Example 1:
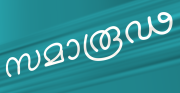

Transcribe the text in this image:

സമാരൂഢ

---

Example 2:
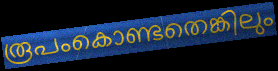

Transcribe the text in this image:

രൂപംകൊണ്ടതെങ്കിലും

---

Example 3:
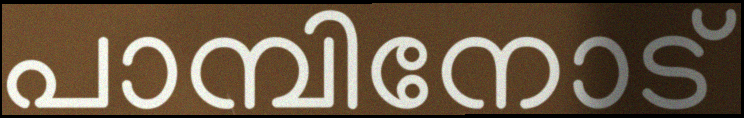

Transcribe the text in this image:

പാമ്പിനോട്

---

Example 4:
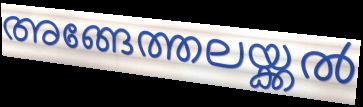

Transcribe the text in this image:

അങ്ങേത്തലയ്ക്കൽ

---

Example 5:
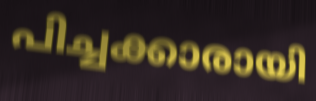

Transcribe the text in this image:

പിച്ചക്കാരായി